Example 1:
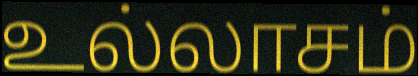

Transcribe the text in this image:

உல்லாசம்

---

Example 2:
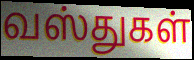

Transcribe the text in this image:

வஸ்துகள்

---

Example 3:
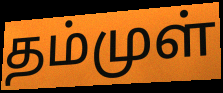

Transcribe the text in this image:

தம்முள்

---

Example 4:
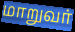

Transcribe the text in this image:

மாறுவர்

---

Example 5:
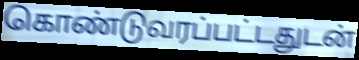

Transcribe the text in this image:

கொண்டுவரப்பட்டதுடன்